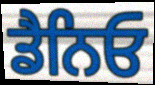
ਡੈਨਿਓ